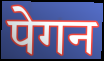
पेगन